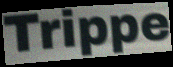
Trippe